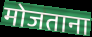
मोजताना